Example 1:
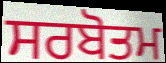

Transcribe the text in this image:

ਸਰਬੋਤਮ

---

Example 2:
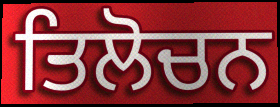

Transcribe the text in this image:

ਤਿਲੋਚਨ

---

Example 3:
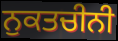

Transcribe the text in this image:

ਨੁਕਤਚੀਨੀ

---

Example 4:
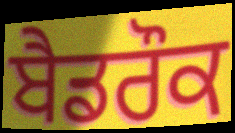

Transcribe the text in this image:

ਬੈਡਰੌਕ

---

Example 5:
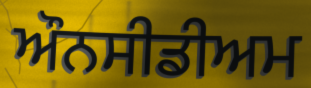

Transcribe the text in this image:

ਔਨਸੀਡੀਅਮ